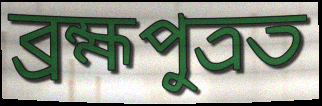
ব্ৰহ্মপুত্ৰত